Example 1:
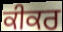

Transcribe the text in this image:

ਕੀਕਰ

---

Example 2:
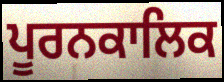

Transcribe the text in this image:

ਪੂਰਨਕਾਲਿਕ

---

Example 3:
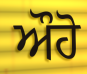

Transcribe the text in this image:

ਔਹੋ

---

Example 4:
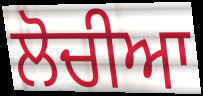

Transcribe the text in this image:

ਲੋਚੀਆ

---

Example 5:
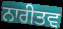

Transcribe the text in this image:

ਨਾਰੀਤਵ